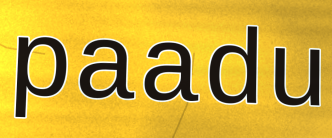
paadu